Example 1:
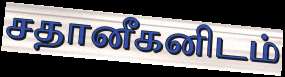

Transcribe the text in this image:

சதானீகனிடம்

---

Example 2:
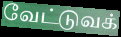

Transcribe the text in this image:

வேட்டுவக்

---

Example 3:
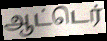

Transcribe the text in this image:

ஆட்டெர்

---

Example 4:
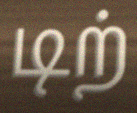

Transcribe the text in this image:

டிற்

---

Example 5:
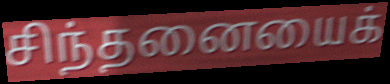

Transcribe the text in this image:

சிந்தனையைக்